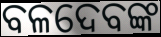
ବଳଦେବଙ୍କ